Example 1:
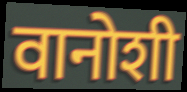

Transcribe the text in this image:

वानोशी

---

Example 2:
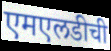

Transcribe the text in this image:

एमएलडीची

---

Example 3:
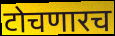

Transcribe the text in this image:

टोचणारच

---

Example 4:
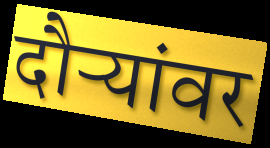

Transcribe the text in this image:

दौऱ्यांवर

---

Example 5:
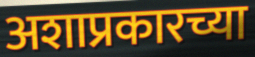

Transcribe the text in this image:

अशाप्रकारच्या